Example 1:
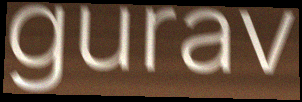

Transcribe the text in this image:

gurav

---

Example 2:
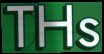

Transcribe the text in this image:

THs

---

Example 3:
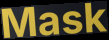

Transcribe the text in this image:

Mask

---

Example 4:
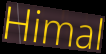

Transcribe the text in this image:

Himal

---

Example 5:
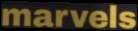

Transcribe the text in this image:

marvels